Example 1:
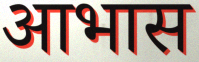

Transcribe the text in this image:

आभास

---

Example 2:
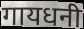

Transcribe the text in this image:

गायधनी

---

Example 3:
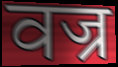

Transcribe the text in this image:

वज्र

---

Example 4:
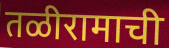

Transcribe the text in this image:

तळीरामाची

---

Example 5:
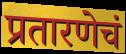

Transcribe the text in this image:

प्रतारणेचं